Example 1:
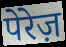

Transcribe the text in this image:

पेरेज़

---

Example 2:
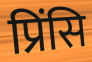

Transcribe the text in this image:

प्रिंसि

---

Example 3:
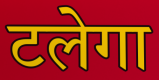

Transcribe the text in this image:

टलेगा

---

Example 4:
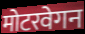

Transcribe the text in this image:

मोटरवेगन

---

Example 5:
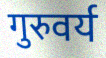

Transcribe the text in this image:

गुरुवर्य